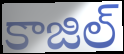
కాజిల్